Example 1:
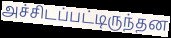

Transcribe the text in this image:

அச்சிடப்பட்டிருந்தன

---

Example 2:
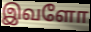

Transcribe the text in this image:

இவளோ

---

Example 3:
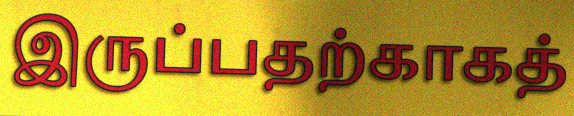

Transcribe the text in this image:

இருப்பதற்காகத்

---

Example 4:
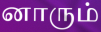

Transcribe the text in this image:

னாரும்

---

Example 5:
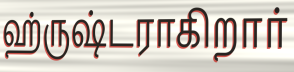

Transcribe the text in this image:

ஹ்ருஷ்டராகிறார்